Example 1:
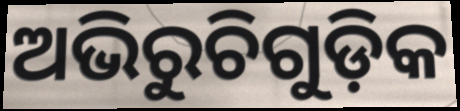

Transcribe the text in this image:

ଅଭିରୁଚିଗୁଡ଼ିକ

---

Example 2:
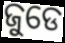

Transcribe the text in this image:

ଜୁଡେ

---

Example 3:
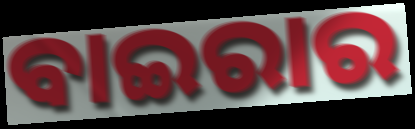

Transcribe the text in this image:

ବାଇରାର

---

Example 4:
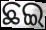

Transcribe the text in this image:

ଛଇ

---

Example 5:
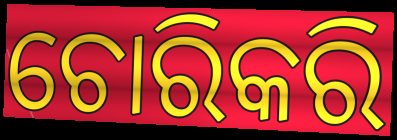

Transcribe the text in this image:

ଚୋରିକରି